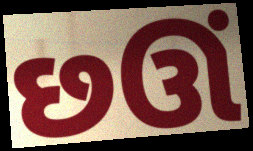
છઊં